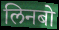
लिनबो